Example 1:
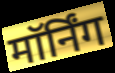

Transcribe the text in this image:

मॉर्निंग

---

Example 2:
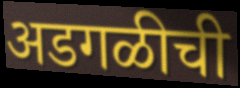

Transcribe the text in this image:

अडगळीची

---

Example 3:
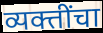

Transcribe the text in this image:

व्यक्तींचा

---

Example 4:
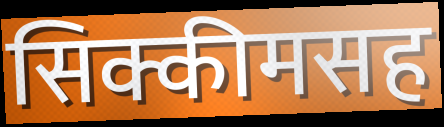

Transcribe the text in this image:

सिक्कीमसह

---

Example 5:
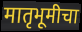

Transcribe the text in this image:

मातृभूमीचा